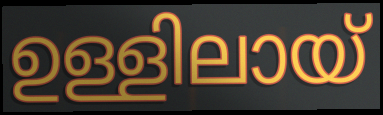
ഉള്ളിലായ്